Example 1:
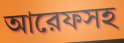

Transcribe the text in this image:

আরেফসহ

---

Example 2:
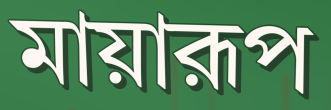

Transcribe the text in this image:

মায়ারূপ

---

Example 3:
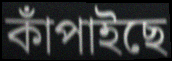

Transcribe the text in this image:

কাঁপাইছে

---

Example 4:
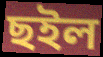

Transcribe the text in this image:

ছইল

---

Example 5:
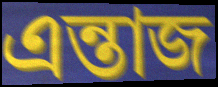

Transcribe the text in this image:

এন্তাজ